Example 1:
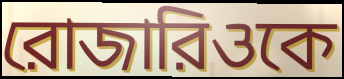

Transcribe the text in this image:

রোজারিওকে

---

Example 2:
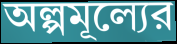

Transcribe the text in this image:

অল্পমূল্যের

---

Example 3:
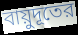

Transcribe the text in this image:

বায়ুদূতের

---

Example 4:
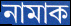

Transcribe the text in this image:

নামাক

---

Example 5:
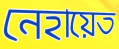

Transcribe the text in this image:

নেহায়েত